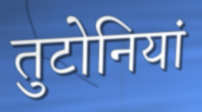
तुटोनियां